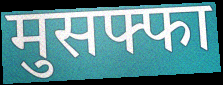
मुसफ्फा